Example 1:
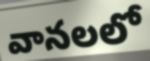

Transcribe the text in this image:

వానలలో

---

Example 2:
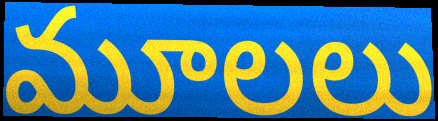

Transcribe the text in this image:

మూలలు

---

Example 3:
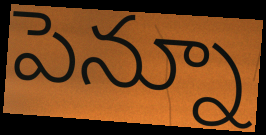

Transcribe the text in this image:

పెన్నూ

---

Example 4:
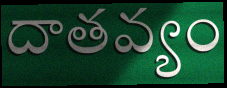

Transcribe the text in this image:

దాతవ్యం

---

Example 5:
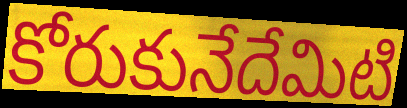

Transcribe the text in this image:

కోరుకునేదేమిటి